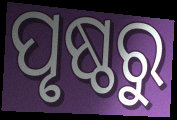
ପୃଷ୍ଠରୁ